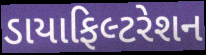
ડાયાફિલ્ટરેશન